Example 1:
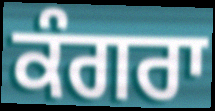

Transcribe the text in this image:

ਕੰਗਰਾ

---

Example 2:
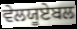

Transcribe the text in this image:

ਵੇਲਯੂਏਬਲ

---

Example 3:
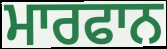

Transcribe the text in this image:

ਮਾਰਫਾਨ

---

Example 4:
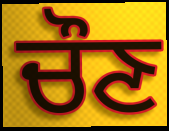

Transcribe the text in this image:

ਚੌਣ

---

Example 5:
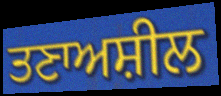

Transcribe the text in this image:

ਤਣਾਅਸ਼ੀਲ